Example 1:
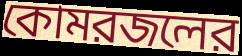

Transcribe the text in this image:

কোমরজলের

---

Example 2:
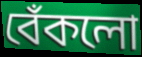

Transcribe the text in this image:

বেঁকলো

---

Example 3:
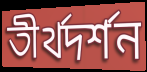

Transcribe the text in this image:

তীর্থদর্শন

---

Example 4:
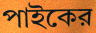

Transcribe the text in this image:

পাইকের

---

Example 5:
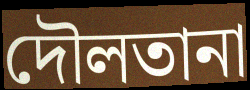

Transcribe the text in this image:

দৌলতানা